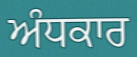
ਅੰਧਕਾਰ